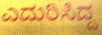
ಎದುರಿಸಿದ್ದ